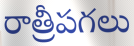
రాత్రీపగలు